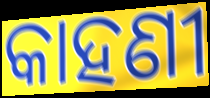
କାହଣୀ